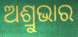
ଅଶ୍ରୁଭାର